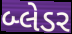
બ્લેડર